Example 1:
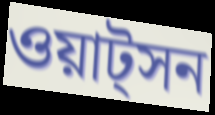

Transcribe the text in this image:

ওয়াট্সন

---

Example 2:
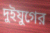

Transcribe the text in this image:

দুইযুগের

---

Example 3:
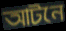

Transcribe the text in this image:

আটনে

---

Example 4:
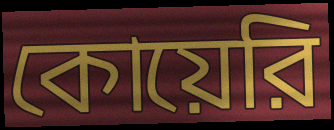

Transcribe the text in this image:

কোয়েরি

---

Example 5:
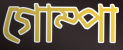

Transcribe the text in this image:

গোম্পা